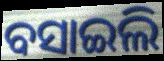
ବସାଇଲି